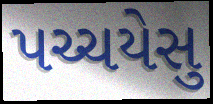
પચ્ચયેસુ